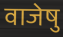
वाजेषु